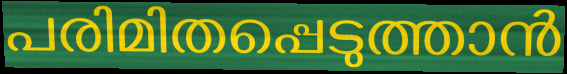
പരിമിതപ്പെടുത്താൻ